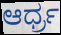
ಆರ್ಧ್ರ